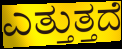
ಎತ್ತುತ್ತದೆ